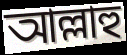
আল্লাহু